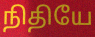
நிதியே